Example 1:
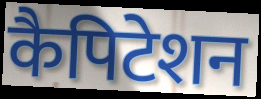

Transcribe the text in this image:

कैपिटेशन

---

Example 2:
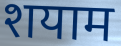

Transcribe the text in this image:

शयाम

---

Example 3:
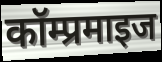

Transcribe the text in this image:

कॉम्प्रमाइज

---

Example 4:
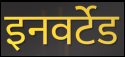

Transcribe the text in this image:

इनवर्टेड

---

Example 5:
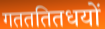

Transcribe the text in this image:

गतततितधयों